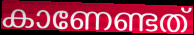
കാണേണ്ടത്